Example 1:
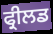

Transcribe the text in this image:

ਫ੍ਰੀਲਡ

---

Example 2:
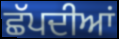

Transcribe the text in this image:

ਛੱਪਦੀਆਂ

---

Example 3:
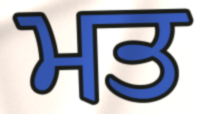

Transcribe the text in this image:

ਮਤ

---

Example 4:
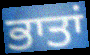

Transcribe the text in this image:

ਭਾਤਾਂ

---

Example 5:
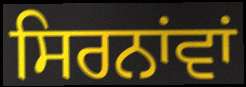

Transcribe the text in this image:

ਸਿਰਨਾਂਵਾਂ